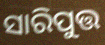
ସାରିପୁତ୍ତ